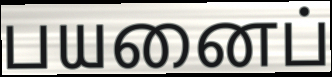
பயனைப்